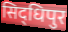
सिद्धिपुर